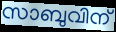
സാബുവിന്